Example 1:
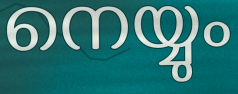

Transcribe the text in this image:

നെയ്യും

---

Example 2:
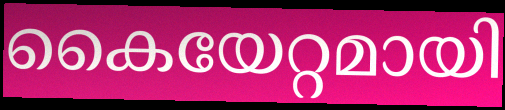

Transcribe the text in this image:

കൈയേറ്റമായി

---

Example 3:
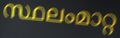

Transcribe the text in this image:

സ്ഥലംമാറ്റ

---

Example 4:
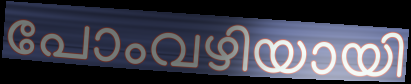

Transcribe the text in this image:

പോംവഴിയായി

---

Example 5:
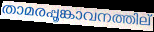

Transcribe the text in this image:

താമരപ്പൂങ്കാവനത്തില്